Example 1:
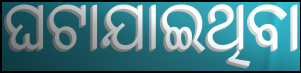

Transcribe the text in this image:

ଘଟାଯାଇଥିବା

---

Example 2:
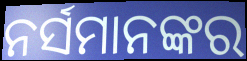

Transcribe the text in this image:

ନର୍ସମାନଙ୍କର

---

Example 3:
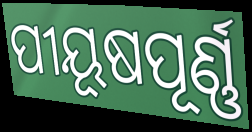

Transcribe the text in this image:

ପୀୟୂଷପୂର୍ଣ୍ଣ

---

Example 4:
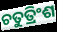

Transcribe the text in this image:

ଚତୁତ୍ରିଂଶ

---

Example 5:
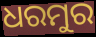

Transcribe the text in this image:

ଧରମୁର